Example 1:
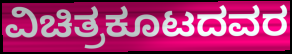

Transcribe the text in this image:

ವಿಚಿತ್ರಕೂಟದವರ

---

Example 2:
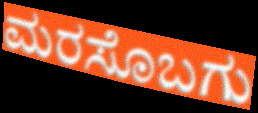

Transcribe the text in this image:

ಮರಸೊಬಗು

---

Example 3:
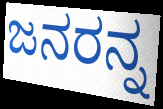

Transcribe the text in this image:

ಜನರನ್ನ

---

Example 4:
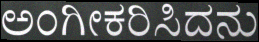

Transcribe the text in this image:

ಅಂಗೀಕರಿಸಿದನು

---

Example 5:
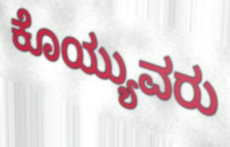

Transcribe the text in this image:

ಕೊಯ್ಯುವರು